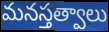
మనస్తత్వాలు